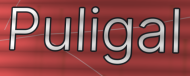
Puligal